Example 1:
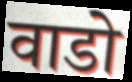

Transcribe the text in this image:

वाडो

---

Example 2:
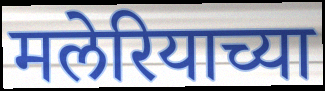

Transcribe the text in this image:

मलेरियाच्या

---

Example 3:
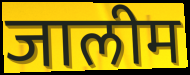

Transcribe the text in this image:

जालीम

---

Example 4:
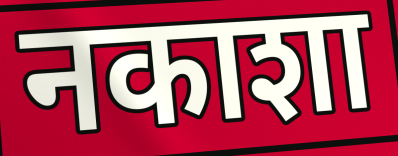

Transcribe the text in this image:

नकाशा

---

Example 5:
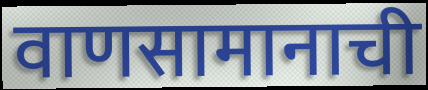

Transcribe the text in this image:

वाणसामानाची